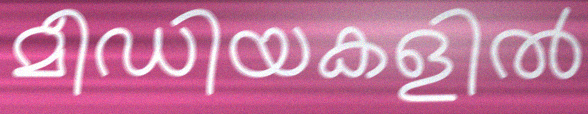
മീഡിയകളിൽ